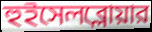
হুইসেলব্লোয়ার